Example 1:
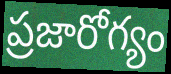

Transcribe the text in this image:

ప్రజారోగ్యం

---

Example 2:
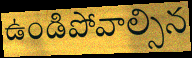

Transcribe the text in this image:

ఉండిపోవాల్సిన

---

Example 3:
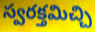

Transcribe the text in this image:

స్వరక్తమిచ్చి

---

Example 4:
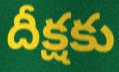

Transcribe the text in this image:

దీక్షకు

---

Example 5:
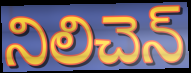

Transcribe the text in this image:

నిలిచెన్